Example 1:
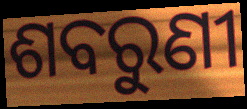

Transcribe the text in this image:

ଶବରୁଣୀ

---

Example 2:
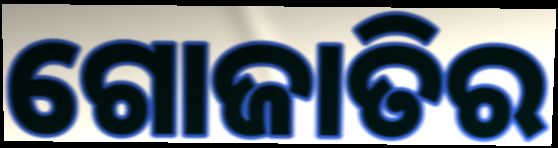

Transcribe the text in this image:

ଗୋଜାତିର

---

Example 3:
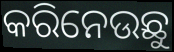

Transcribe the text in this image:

କରିନେଉଛୁ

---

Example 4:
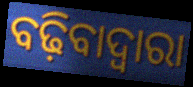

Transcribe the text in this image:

ବଢ଼ିବାଦ୍ୱାରା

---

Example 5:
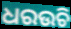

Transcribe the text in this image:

ଧରଉଚି